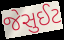
જેસુઈટ